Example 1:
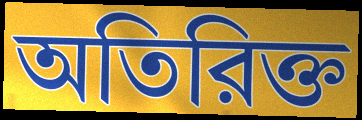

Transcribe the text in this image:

অতিরিক্ত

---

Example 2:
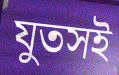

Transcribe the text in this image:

যুতসই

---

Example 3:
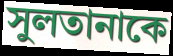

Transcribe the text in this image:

সুলতানাকে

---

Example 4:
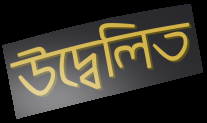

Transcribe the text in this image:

উদ্বেলিত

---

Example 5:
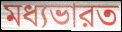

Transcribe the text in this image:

মধ্যভারত